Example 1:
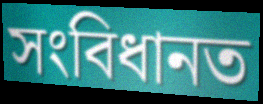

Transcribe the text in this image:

সংবিধানত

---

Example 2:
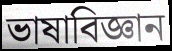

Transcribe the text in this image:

ভাষাবিজ্ঞান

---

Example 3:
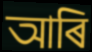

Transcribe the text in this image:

আৰি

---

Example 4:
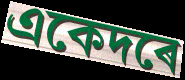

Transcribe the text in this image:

একেদৰে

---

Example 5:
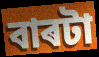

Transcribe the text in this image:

বাৰটা